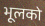
भूलको